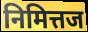
निमित्तज